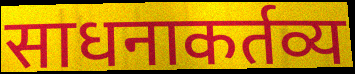
साधनाकर्तव्य